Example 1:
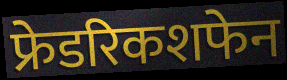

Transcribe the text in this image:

फ्रेडरिकशफेन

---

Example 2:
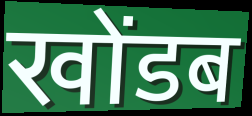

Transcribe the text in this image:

खोंडब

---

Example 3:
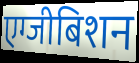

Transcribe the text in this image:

एग्जीबिशन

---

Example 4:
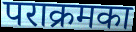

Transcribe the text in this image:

पराक्रमका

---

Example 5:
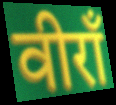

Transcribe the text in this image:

वीराँ